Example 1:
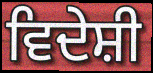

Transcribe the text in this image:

ਵਿਦੇਸ਼ੀ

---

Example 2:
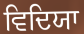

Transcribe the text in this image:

ਵਿਦਿਯਾ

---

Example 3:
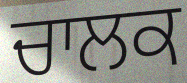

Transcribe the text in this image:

ਚਾਲਕ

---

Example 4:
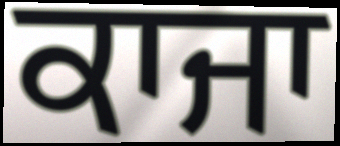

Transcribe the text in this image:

ਕਾਜਾ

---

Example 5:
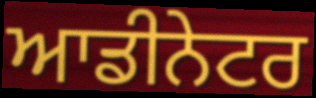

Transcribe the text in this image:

ਆਡੀਨੇਟਰ